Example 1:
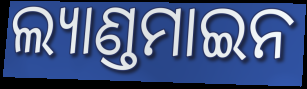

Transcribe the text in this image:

ଲ୍ୟାଣ୍ଡମାଇନ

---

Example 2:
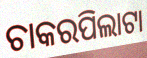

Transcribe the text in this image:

ଚାକରପିଲାଟା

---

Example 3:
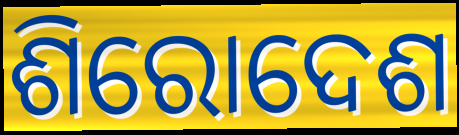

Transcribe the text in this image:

ଶିରୋଦେଶ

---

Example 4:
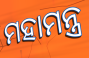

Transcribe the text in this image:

ମହାମନ୍ତ୍ର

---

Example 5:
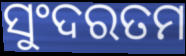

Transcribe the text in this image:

ସୁଂଦରତମ